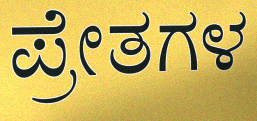
ಪ್ರೇತಗಳ